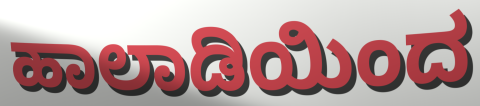
ಹಾಲಾಡಿಯಿಂದ